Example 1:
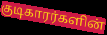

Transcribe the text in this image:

குடிகாரர்களின்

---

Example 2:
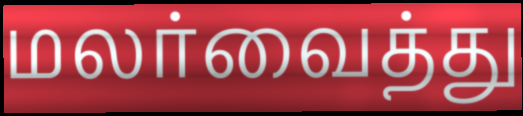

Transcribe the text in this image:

மலர்வைத்து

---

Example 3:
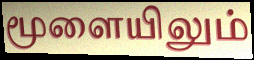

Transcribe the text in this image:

மூளையிலும்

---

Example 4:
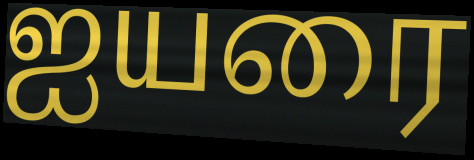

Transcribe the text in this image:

ஐயரை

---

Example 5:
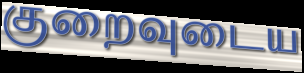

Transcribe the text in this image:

குறைவுடைய